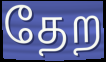
தேற